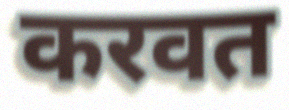
करवत